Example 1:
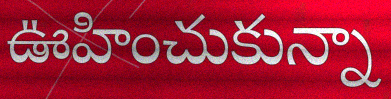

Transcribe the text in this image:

ఊహించుకున్నా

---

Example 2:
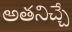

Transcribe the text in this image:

అతనిచ్చే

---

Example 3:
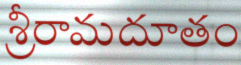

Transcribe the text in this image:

శ్రీరామదూతం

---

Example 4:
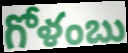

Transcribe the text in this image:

గోళంబు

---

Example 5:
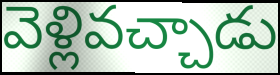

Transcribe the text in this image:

వెళ్లివచ్చాడు